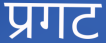
प्रगट